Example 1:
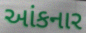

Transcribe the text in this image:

આંકનાર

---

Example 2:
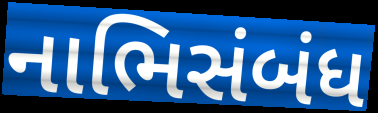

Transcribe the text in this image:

નાભિસંબંધ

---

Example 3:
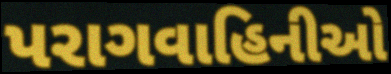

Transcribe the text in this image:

પરાગવાહિનીઓ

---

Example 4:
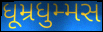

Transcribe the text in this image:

ધૂમ્રધુમ્મસ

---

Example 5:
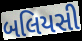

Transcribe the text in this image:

બલિયસી